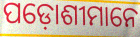
ପଡ଼ୋଶୀମାନେ